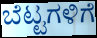
ಬೆಟ್ಟಗಳಿಗೆ